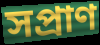
সপ্রাণ